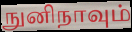
நுனிநாவும்